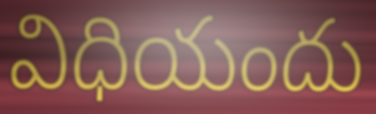
విధియందు